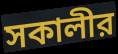
সকালীর